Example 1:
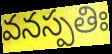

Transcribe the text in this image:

వనస్పతిః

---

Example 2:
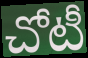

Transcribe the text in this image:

చోటీ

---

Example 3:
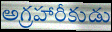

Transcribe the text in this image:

అగ్రహారీకుడు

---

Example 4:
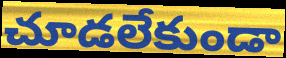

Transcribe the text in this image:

చూడలేకుండా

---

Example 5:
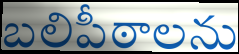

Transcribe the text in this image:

బలిపీఠాలను